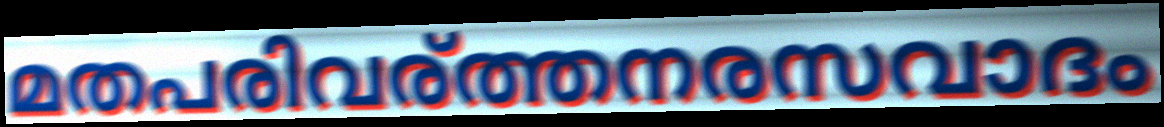
മതപരിവര്ത്തനരസവാദം